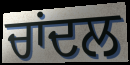
ਚਾਂਦਲ